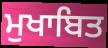
ਮੁਖਾਬਿਤ